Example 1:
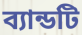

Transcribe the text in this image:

ব্যান্ডটি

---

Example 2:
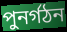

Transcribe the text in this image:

পুনর্গঠন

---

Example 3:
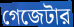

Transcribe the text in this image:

গেজেটার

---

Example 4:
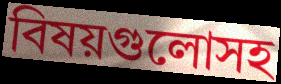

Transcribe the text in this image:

বিষয়গুলোসহ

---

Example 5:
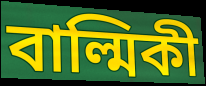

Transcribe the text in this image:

বাল্মিকী